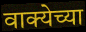
वाक्येच्या